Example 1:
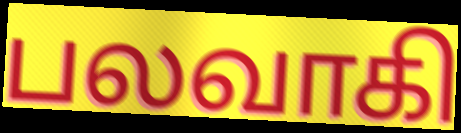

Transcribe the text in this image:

பலவாகி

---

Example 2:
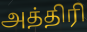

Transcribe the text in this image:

அத்திரி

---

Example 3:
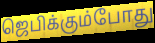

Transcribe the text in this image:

ஜெபிக்கும்போது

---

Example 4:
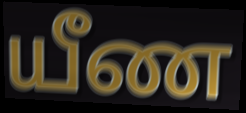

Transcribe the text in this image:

யீண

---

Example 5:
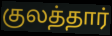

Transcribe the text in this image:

குலத்தார்